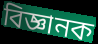
বিজ্ঞানক